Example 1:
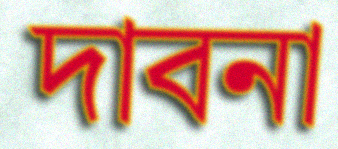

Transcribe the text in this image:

দাবনা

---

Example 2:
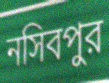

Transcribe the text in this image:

নসিবপুর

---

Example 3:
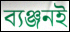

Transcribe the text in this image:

ব্যঞ্জনই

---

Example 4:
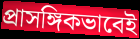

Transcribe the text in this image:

প্রাসঙ্গিকভাবেই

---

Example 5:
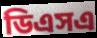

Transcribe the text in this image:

ডিএসএ